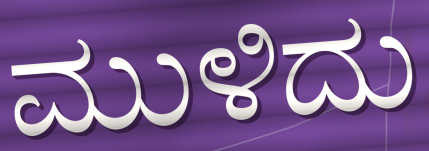
ಮುಳಿದು